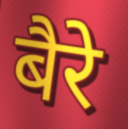
बैरे